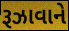
રૂઝાવાને